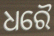
ଧରୈ